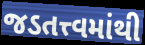
જડતત્ત્વમાંથી